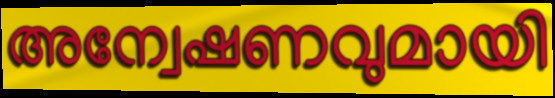
അന്വേഷണവുമായി